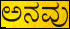
ಅನವು